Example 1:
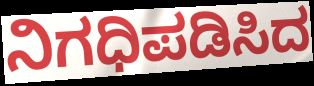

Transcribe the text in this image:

ನಿಗಧಿಪಡಿಸಿದ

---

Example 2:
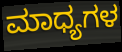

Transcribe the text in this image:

ಮಾಧ್ಯಗಳ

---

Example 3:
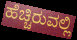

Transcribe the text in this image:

ಹೆಚ್ಚಿರುವಲ್ಲಿ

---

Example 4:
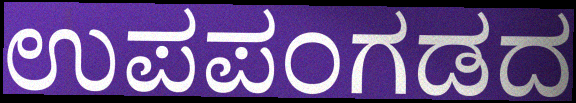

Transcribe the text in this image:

ಉಪಪಂಗಡದ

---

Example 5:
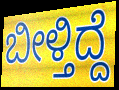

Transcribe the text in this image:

ಬೀಳ್ತಿದ್ದೆ